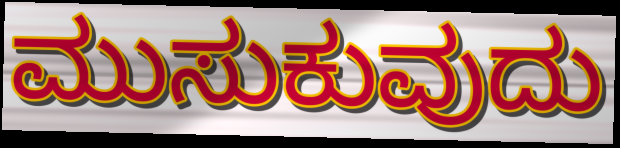
ಮುಸುಕುವುದು